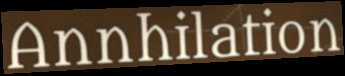
Annhilation